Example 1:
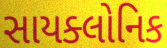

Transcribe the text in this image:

સાયક્લોનિક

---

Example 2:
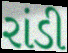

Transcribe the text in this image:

રાંડી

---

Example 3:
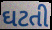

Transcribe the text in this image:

ઘટતી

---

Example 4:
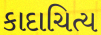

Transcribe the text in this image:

કાદાચિત્ય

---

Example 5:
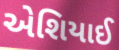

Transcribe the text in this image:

એશિયાઈ